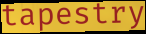
tapestry